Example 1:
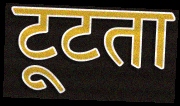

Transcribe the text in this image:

टूटता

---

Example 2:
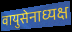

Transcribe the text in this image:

वायुसेनाध्यक्ष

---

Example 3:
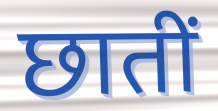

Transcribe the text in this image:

छातीं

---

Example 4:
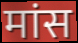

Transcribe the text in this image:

मांस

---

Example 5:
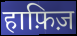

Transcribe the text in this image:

हाफ़िज़